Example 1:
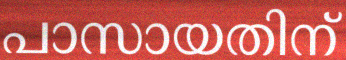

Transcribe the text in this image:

പാസായതിന്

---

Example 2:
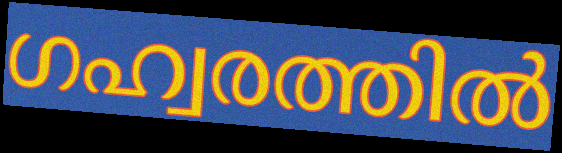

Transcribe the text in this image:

ഗഹ്വരത്തിൽ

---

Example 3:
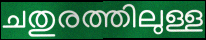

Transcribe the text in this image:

ചതുരത്തിലുള്ള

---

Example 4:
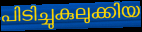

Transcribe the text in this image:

പിടിച്ചുകുലുക്കിയ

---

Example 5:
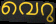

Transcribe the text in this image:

വെറു